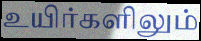
உயிர்களிலும்